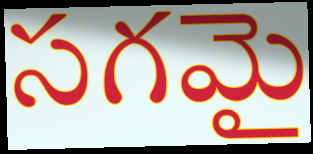
సగమై